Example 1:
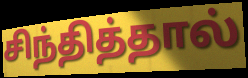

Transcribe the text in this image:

சிந்தித்தால்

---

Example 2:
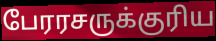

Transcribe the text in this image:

பேரரசருக்குரிய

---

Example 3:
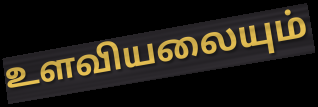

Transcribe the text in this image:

உளவியலையும்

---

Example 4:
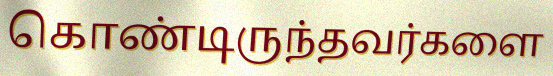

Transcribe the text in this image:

கொண்டிருந்தவர்களை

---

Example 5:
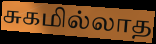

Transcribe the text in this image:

சுகமில்லாத